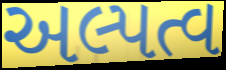
અલ્પત્વ